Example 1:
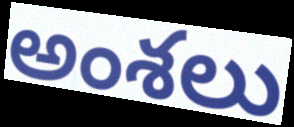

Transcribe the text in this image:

అంశలు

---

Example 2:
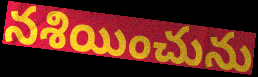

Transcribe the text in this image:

నశియించును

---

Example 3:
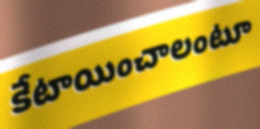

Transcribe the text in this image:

కేటాయించాలంటూ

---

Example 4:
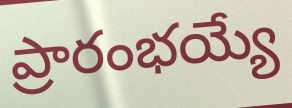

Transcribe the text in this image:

ప్రారంభయ్యే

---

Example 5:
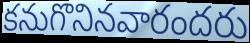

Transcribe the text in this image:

కనుగొనినవారందరు